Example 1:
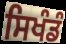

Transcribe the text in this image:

ਸਿਖੰਡੰ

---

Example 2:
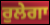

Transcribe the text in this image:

ਰੁਲੇਗਾ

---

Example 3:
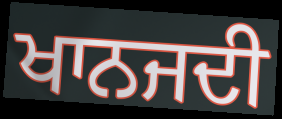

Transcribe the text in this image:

ਖਾਨਜਦੀ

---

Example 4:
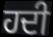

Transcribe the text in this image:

ਹਦੀ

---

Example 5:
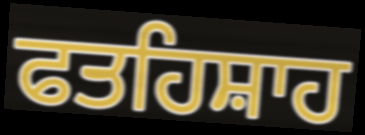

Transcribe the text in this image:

ਫਤਹਿਸ਼ਾਹ